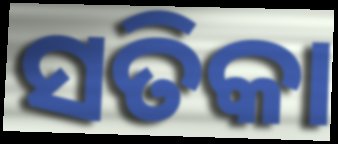
ସତିକା